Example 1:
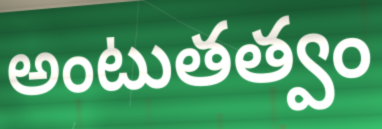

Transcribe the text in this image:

అంటుతత్వం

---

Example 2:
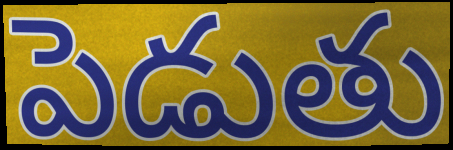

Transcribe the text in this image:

పెడుతు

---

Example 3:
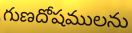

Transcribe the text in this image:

గుణదోషములను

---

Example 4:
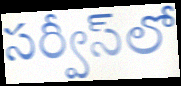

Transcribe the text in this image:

సర్వీస్‌లో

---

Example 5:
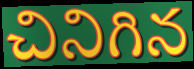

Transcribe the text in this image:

చినిగిన